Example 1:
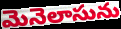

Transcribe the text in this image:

మెనెలాసును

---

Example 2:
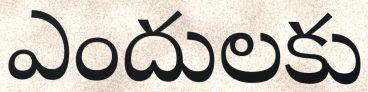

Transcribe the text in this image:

ఎందులకు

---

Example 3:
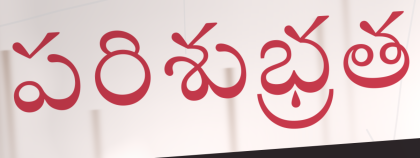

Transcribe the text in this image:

పరిశుభ్రత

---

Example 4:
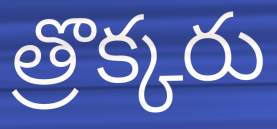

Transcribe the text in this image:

త్రొక్కరు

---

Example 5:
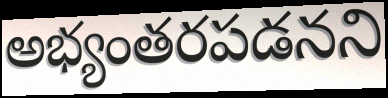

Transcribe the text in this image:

అభ్యంతరపడనని